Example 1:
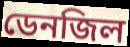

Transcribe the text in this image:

ডেনজিল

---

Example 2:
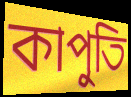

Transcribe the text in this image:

কাপুতি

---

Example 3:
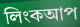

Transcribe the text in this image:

লিংকআপ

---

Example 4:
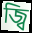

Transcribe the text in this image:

জ্বি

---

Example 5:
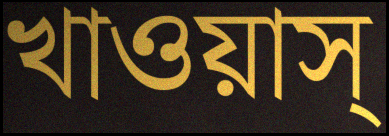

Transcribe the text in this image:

খাওয়াস্